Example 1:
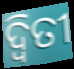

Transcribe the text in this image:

ଦ୍ୱିତୀ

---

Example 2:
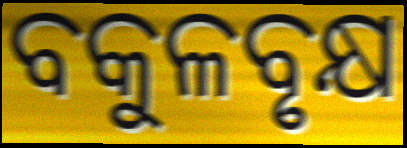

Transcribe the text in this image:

ବକୁଳବୃକ୍ଷ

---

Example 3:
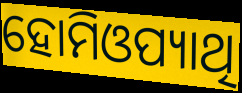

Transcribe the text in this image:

ହୋମିଓପ୍ୟାଥି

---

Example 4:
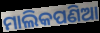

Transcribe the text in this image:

ମାଲିକପଣିଆ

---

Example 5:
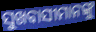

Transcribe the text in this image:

ସୁଖବାସୀମାନଙ୍କୁ